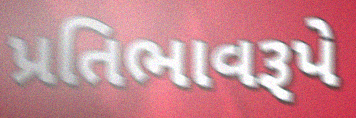
પ્રતિભાવરૂપે